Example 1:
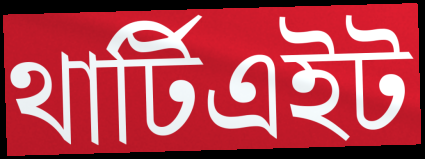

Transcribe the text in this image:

থার্টিএইট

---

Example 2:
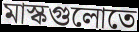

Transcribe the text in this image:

মাস্কগুলোতে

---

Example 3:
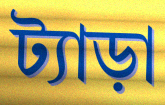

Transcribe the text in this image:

ট্যাড়া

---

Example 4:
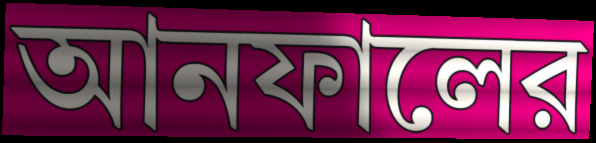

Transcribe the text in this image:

আনফালের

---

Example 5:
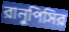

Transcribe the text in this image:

রানুপিসির